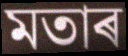
মতাৰ